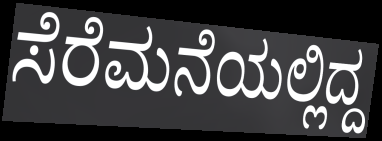
ಸೆರೆಮನೆಯಲ್ಲಿದ್ದ